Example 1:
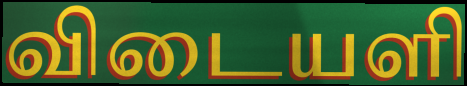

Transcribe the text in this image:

விடையளி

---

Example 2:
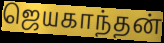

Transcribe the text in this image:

ஜெயகாந்தன்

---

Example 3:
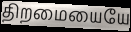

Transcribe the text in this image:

திறமையையே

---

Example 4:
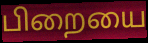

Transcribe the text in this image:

பிறையை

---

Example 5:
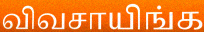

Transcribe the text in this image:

விவசாயிங்க